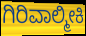
ಗಿರಿವಾಲ್ಮೀಕಿ